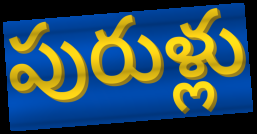
పురుళ్లు